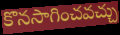
కొనసాగించవచ్చు